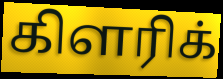
கிளரிக்